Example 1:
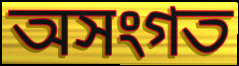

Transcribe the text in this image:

অসংগত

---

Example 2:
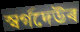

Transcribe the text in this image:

স্বৰ্গদেউৰ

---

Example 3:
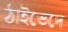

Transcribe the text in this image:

ঠাইভেদে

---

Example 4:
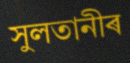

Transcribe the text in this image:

সুলতানীৰ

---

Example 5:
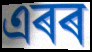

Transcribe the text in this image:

এৰৰ